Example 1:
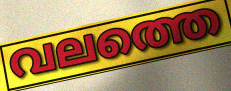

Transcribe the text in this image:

വലത്തെ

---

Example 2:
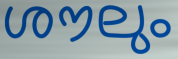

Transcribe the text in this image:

ശൗലും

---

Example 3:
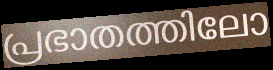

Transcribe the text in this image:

പ്രഭാതത്തിലോ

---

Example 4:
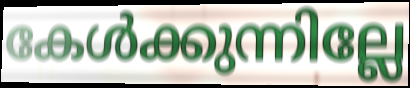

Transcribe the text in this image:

കേൾക്കുന്നില്ലേ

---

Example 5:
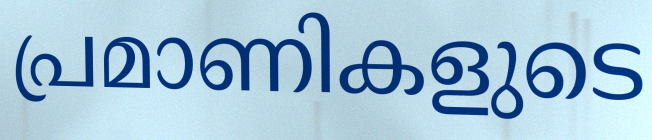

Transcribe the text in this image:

പ്രമാണികളുടെ